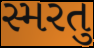
સ્મરતુ